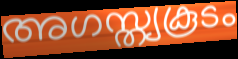
അഗസ്ത്യകൂടം